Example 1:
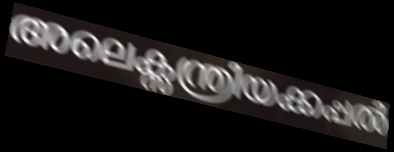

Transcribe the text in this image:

അലെക്സന്ത്രിയക്കപ്പൽ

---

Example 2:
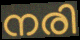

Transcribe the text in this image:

നരി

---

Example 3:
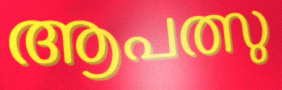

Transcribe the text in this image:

ആപത്സു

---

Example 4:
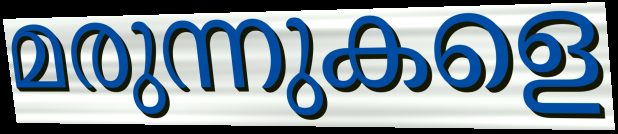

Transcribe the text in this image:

മരുന്നുകളെ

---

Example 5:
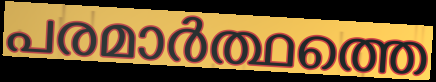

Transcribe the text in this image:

പരമാർത്ഥത്തെ